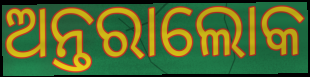
ଅନ୍ତରାଲୋକ